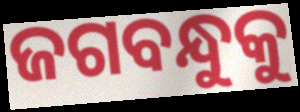
ଜଗବନ୍ଧୁକୁ